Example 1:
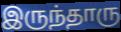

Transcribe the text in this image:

இருந்தாரு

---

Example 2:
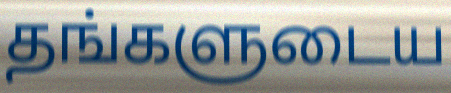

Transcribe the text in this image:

தங்களுடைய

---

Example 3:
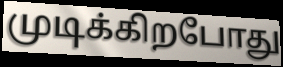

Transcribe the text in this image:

முடிக்கிறபோது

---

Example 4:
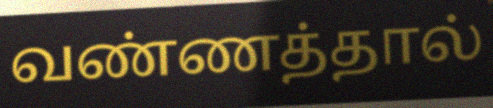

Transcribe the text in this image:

வண்ணத்தால்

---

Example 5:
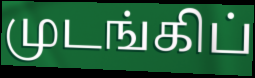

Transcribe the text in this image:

முடங்கிப்